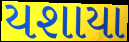
યશાયા